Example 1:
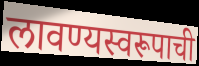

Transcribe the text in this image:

लावण्यस्वरूपाची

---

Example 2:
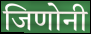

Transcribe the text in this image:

जिणोनी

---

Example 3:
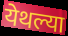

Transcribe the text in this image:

येथल्या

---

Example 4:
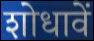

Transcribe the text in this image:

शोधावें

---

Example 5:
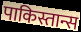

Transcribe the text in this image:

पाकिस्तान्स